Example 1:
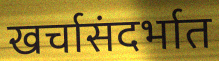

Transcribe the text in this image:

खर्चासंदर्भात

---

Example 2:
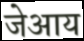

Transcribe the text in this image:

जेआय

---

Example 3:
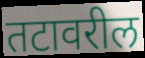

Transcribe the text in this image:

तटावरील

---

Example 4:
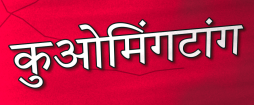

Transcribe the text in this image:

कुओमिंगटांग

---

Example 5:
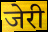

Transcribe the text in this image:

जेरी